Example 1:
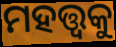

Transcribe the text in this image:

ମହତ୍ତ୍ଵକୁ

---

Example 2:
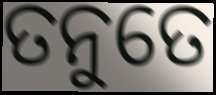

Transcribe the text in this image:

ତନୁତେ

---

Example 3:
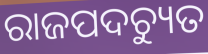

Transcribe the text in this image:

ରାଜପଦଚ୍ୟୁତ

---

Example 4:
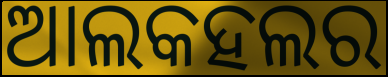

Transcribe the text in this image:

ଆଲକହଲର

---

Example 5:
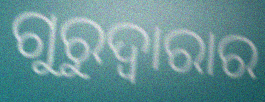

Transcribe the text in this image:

ଗୁରୁଦ୍ୱାରାର